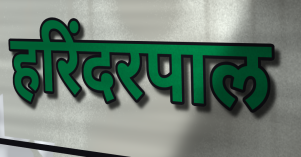
हरिंदरपाल